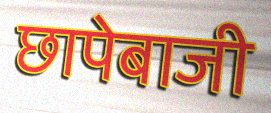
छापेबाजी